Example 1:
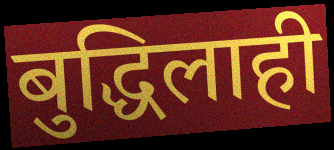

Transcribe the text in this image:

बुद्धिलाही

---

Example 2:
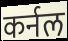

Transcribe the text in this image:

कर्नल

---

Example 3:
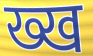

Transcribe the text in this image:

ख्ख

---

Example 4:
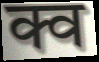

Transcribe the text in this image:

क्व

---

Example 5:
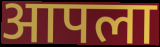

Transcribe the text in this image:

आपला